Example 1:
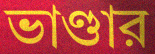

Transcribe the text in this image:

ভাণ্ডার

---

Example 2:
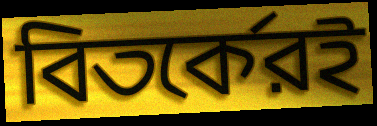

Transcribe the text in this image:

বিতর্কেরই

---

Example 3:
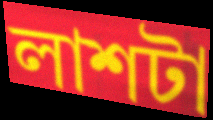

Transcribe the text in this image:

লাশটা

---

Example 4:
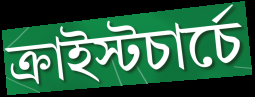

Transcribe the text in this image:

ক্রাইস্টচার্চে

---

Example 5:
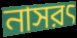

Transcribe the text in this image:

নাসরৎ